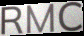
RMC